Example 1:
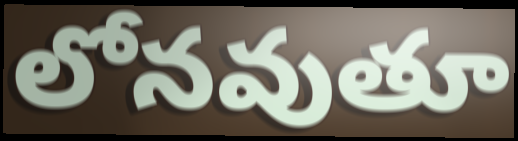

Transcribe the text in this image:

లోనవుతూ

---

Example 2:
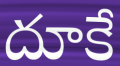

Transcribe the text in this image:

దూకే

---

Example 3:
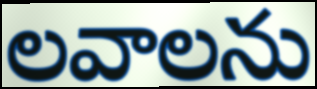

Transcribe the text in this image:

లవాలను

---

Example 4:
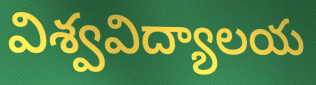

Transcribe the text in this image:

విశ్వవిద్యాలయ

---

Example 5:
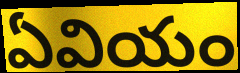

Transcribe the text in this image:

ఏవియం